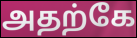
அதற்கே